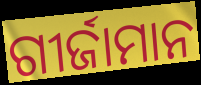
ଗୀର୍ଜାମାନ